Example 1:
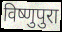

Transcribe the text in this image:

विष्णुपुरा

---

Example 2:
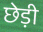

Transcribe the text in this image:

छेड़ी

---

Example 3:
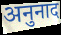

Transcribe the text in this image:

अनुनाद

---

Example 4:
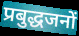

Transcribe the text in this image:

प्रबुद्धजनों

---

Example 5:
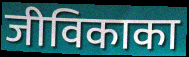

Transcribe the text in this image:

जीविकाका